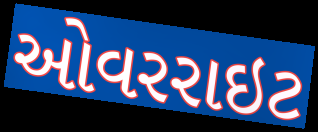
ઓવરરાઇટ